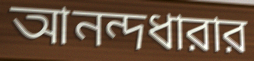
আনন্দধারার